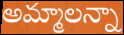
అమ్మాలన్నా